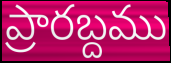
ప్రారబ్దము